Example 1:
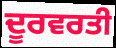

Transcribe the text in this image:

ਦੂਰਵਰਤੀ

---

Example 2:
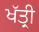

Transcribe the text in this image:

ਖੱਤ੍ਰੀ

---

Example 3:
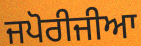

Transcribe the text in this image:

ਜਪੋਰੀਜੀਆ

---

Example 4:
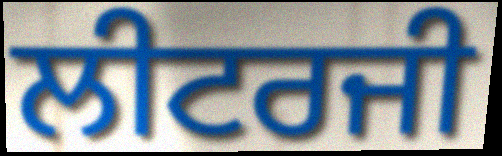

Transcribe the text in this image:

ਲੀਟਰਜੀ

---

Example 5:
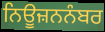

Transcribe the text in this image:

ਨਿਊਜ਼ਨਨੰਬਰ